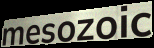
mesozoic